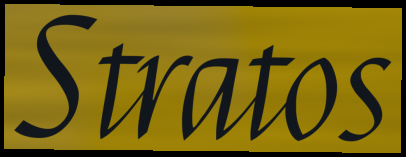
Stratos